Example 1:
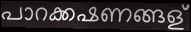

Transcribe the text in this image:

പാറക്കഷണങ്ങള്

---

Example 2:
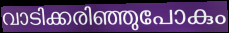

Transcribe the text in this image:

വാടിക്കരിഞ്ഞുപോകും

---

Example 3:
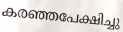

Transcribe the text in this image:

കരഞ്ഞപേക്ഷിച്ചു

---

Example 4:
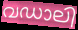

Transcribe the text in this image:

വഡാലി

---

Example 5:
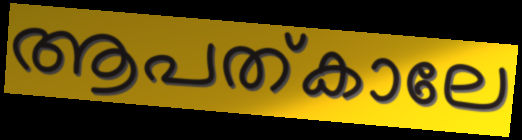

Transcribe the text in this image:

ആപത്കാലേ